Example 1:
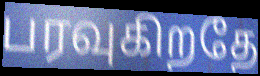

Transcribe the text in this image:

பரவுகிறதே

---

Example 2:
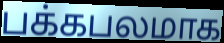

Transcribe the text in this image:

பக்கபலமாக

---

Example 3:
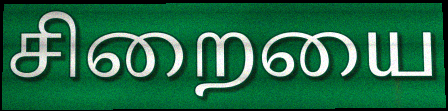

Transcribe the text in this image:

சிறையை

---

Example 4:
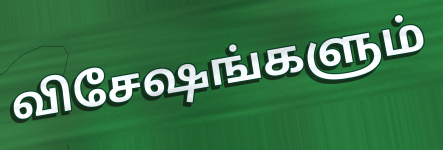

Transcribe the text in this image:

விசேஷங்களும்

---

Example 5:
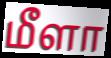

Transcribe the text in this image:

மீளா